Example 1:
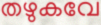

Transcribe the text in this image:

തഴുകവേ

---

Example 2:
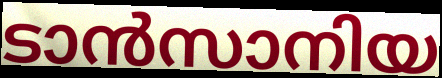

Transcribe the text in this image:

ടാൻസാനിയ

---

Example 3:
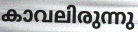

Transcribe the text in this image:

കാവലിരുന്നു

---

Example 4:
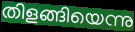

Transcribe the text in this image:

തിളങ്ങിയെന്നു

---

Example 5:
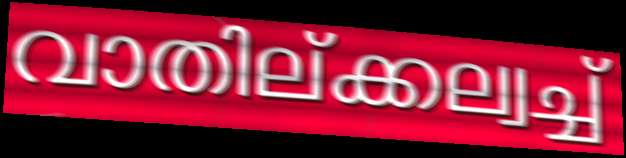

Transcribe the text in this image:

വാതില്ക്കല്വച്ച്